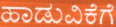
ಹಾಡುವಿಕೆಗೆ